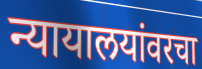
न्यायालयांवरचा